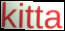
kitta